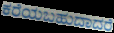
ಕರೆಯಬಹುದಾದರೆ